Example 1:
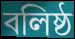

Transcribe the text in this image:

বলিষ্ঠ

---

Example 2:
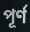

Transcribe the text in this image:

পূর্ণ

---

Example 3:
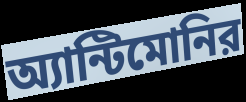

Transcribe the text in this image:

অ্যান্টিমোনির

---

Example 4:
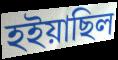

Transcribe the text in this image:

হইয়াছিল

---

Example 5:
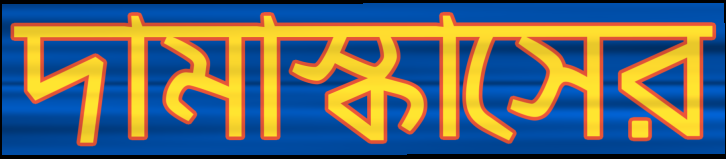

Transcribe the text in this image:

দামাস্কাসের